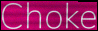
Choke